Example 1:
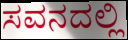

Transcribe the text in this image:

ಸವನದಲ್ಲಿ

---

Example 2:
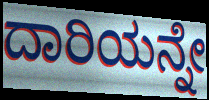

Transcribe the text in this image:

ದಾರಿಯನ್ನೇ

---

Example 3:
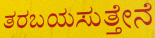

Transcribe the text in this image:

ತರಬಯಸುತ್ತೇನೆ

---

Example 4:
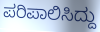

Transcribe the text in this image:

ಪರಿಪಾಲಿಸಿದ್ದು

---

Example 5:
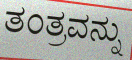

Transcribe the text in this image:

ತಂತ್ರವನ್ನು